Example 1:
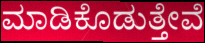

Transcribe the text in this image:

ಮಾಡಿಕೊಡುತ್ತೇವೆ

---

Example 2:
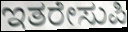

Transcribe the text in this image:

ಇತರೇಸುಪಿ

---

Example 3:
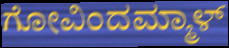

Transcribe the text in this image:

ಗೋವಿಂದಮ್ಮಾಳ್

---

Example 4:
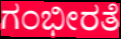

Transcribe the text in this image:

ಗಂಭೀರತೆ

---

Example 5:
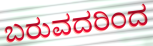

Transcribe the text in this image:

ಬರುವದರಿಂದ